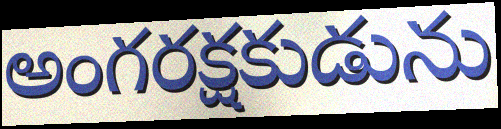
అంగరక్షకుడును